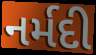
નર્મદી